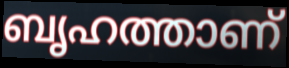
ബൃഹത്താണ്